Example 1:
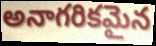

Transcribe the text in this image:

అనాగరికమైన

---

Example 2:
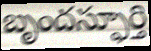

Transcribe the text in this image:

బృందస్ఫూర్తి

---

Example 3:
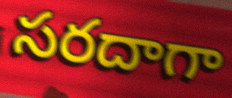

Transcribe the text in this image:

సరదాగా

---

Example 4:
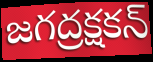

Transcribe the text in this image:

జగద్రక్షకన్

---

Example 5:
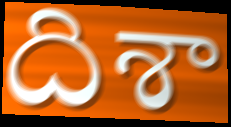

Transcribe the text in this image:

దిశా